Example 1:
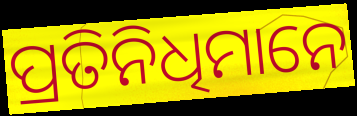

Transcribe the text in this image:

ପ୍ରତିନିଧିମାନେ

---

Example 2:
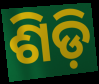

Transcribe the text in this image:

ଶିଡ଼ି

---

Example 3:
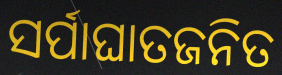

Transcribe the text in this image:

ସର୍ପାଘାତଜନିତ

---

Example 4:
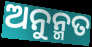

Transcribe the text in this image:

ଅନୁନ୍ମତ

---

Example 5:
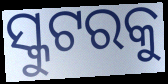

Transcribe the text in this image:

ସ୍କୁଟରକୁ